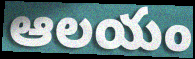
ఆలయం